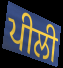
ਪੀਲੀ